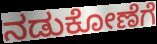
ನಡುಕೋಣೆಗೆ